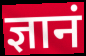
ज्ञानं